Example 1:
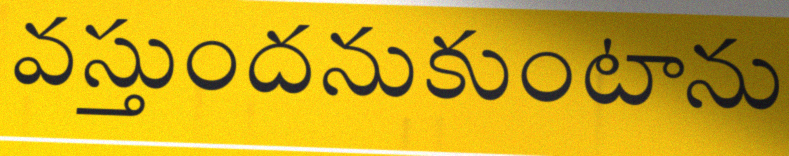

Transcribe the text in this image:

వస్తుందనుకుంటాను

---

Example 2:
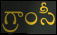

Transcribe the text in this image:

గ్రాంసీ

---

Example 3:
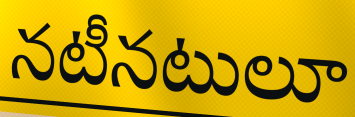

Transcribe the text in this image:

నటీనటులూ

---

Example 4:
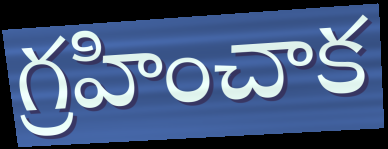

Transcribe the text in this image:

గ్రహించాక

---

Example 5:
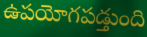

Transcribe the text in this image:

ఉపయోగపడ్తుంది